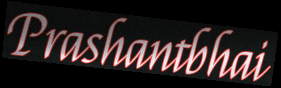
Prashantbhai